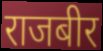
राजबीर